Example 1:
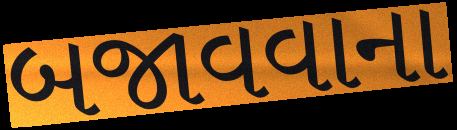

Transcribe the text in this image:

બજાવવાના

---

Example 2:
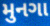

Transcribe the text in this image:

મુનગા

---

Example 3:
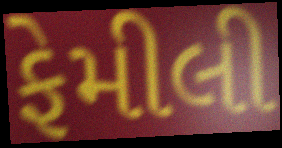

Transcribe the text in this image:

ફેમીલી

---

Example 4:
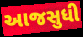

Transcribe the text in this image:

આજસુધી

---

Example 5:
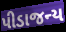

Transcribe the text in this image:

પીડાજન્ય